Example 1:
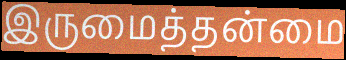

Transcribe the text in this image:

இருமைத்தன்மை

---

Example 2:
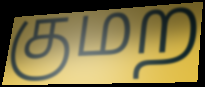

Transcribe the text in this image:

குமற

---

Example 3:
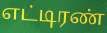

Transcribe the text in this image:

எட்டிரண்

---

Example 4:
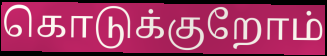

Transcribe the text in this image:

கொடுக்குறோம்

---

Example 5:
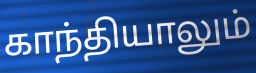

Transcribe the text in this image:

காந்தியாலும்